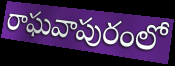
రాఘవాపురంలో